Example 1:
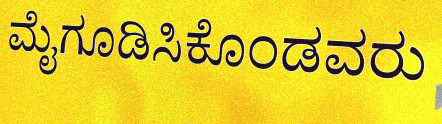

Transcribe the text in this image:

ಮೈಗೂಡಿಸಿಕೊಂಡವರು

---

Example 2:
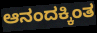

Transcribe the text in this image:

ಆನಂದಕ್ಕಿಂತ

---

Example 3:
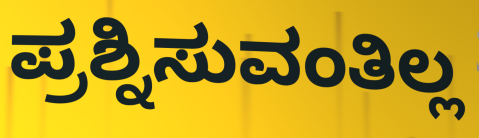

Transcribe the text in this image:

ಪ್ರಶ್ನಿಸುವಂತಿಲ್ಲ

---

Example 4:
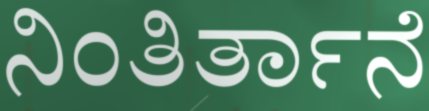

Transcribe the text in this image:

ನಿಂತಿರ್ತಾನೆ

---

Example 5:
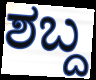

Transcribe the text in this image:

ಶಬ್ದ